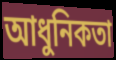
আধুনিকতা